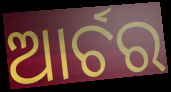
ଆର୍ଚର